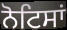
ਨੋਟਿਸਾਂ